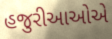
હજુરીઆઓએ